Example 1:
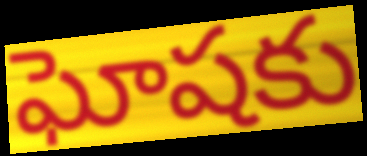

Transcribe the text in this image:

ఘోషకు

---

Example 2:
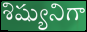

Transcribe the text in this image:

శిష్యునిగా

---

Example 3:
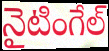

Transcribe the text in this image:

నైటింగేల్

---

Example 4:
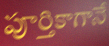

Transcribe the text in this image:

పూర్తికాగానే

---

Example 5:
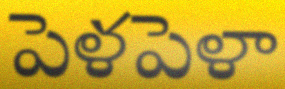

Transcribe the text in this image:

పెళపెళా